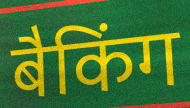
बैकिंग